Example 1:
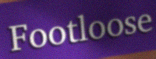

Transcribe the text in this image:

Footloose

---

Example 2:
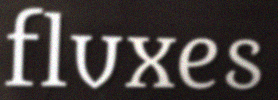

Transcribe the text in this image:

fluxes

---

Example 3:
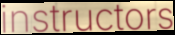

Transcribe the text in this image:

instructors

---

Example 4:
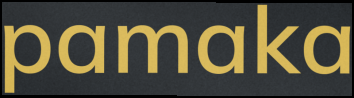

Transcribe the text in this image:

pamaka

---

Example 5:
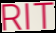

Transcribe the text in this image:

RIT